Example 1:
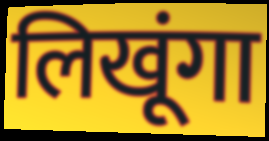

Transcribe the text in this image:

लिखूंगा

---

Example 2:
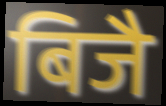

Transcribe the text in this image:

बिजै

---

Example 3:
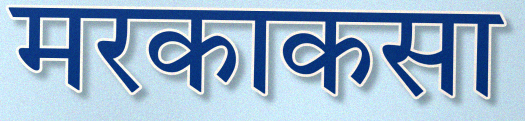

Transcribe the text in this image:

मरकाकसा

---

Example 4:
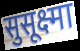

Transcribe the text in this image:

सुसूक्ष्मा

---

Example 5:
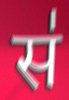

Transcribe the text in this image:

स॑